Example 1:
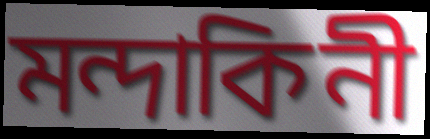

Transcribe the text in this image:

মন্দাকিনী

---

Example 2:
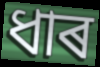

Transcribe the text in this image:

ধাৰ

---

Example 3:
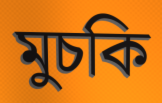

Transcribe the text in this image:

মুচকি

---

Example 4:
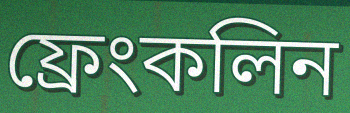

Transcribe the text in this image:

ফ্ৰেংকলিন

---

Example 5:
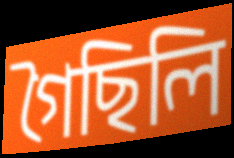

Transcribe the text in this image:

গৈছিলি